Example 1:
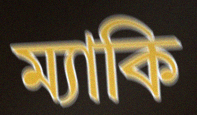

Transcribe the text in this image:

ম্যাকি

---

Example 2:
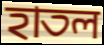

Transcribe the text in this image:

হাতল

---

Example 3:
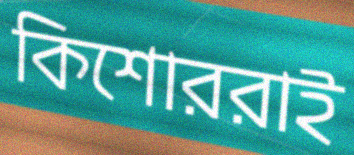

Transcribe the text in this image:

কিশোররাই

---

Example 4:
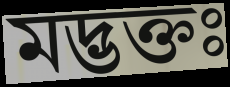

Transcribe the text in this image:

মদ্ভক্তঃ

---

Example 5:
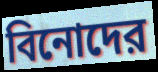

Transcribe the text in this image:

বিনোদের